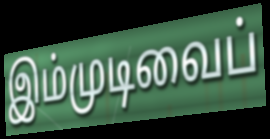
இம்முடிவைப்